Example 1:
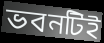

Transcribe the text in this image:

ভবনটিই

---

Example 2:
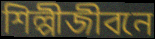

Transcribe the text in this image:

শিল্পীজীবনে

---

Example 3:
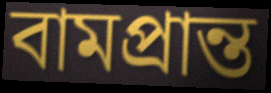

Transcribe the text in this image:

বামপ্রান্ত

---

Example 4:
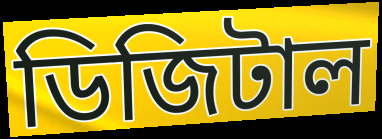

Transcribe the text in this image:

ডিজিটাল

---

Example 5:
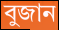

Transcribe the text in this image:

বুজান